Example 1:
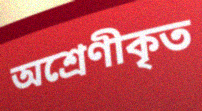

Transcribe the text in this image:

অশ্ৰেণীকৃত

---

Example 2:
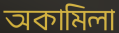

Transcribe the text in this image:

অকামিলা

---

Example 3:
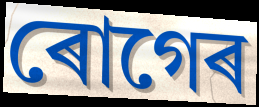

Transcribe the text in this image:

ৰোগেৰ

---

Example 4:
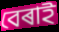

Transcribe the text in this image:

বেৰাই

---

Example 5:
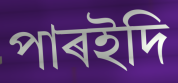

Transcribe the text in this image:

পাৰইদি